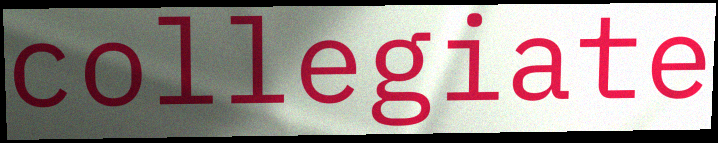
collegiate